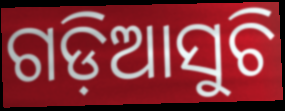
ଗଡ଼ିଆସୁଚି